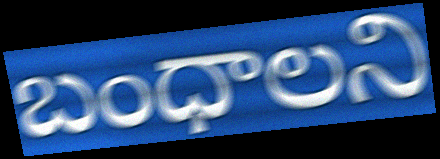
బంధాలని